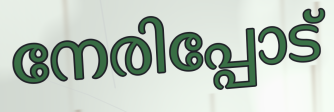
നേരിപ്പോട്